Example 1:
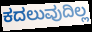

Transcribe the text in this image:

ಕದಲುವುದಿಲ್ಲ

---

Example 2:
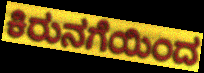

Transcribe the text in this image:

ಕಿರುನಗೆಯಿಂದ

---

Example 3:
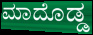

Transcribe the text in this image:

ಮಾದೊಡ್ಡ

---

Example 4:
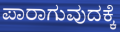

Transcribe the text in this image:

ಪಾರಾಗುವುದಕ್ಕೆ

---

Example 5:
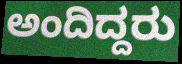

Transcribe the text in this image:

ಅಂದಿದ್ದರು